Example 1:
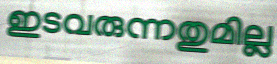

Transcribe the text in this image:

ഇടവരുന്നതുമില്ല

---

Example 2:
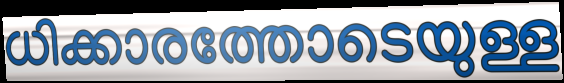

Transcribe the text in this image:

ധിക്കാരത്തോടെയുള്ള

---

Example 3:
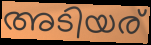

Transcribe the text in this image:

അടിയര്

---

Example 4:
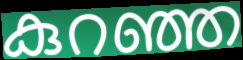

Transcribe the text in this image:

കുറഞ്ഞ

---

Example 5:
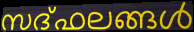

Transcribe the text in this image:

സദ്ഫലങ്ങൾ